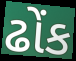
ઢોંક